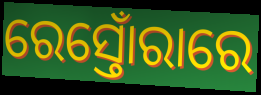
ରେସ୍ତୋଁରାରେ